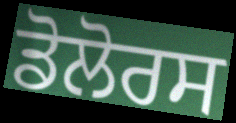
ਡੋਲੋਰਸ